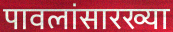
पावलांसारख्या